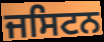
ਜਸਿਟਨ